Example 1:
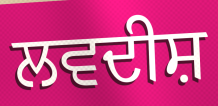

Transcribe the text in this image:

ਲਵਦੀਸ਼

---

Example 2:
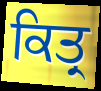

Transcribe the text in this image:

ਕਿਤ੍ਰ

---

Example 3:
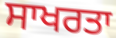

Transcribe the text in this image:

ਸਾਖਰਤਾ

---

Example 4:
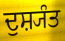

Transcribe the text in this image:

ਦੁਸ਼੍ਯੰਤ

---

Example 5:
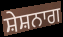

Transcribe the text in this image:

ਸ਼ੇਸ਼ਨਾਗ